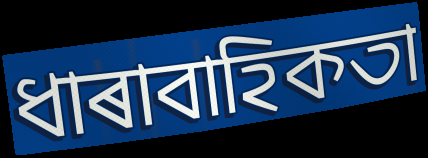
ধাৰাবাহিকতা